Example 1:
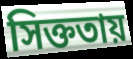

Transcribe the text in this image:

সিক্ততায়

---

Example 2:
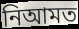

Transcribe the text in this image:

নিআমত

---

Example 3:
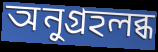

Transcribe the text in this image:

অনুগ্রহলব্ধ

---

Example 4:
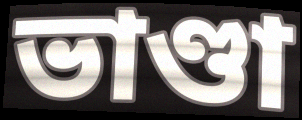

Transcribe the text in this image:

ভাণ্ডা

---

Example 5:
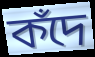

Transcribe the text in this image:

কঁদে